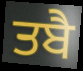
ਤਬੈ